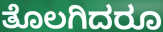
ತೊಲಗಿದರೂ